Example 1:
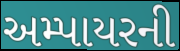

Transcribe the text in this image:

અમ્પાયરની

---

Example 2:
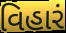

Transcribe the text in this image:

વિહારં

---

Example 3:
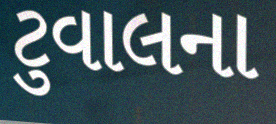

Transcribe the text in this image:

ટુવાલના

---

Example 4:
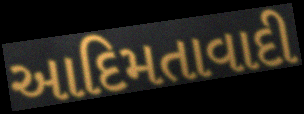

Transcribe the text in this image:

આદિમતાવાદી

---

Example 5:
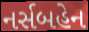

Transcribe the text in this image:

નર્સબહેન